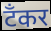
टँकर